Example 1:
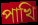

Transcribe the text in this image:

পাখি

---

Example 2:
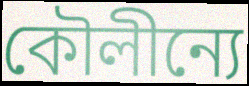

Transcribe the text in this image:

কৌলীন্যে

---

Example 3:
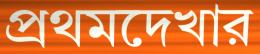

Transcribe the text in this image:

প্রথমদেখার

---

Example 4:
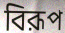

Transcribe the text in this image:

বিরূপ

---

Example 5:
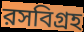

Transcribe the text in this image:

রসবিগ্রহ